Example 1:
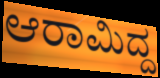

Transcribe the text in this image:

ಆರಾಮಿದ್ದ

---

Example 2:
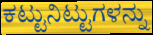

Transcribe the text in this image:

ಕಟ್ಟುನಿಟ್ಟುಗಳನ್ನು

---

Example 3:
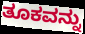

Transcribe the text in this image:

ತೂಕವನ್ನು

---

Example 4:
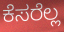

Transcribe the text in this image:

ಕೆಸರೆಲ್ಲ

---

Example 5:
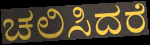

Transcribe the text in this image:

ಚಲಿಸಿದರೆ